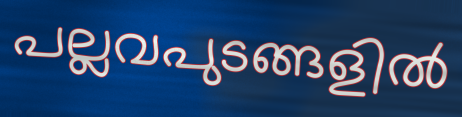
പല്ലവപുടങ്ങളിൽ